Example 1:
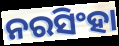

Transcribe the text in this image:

ନରସିଂହା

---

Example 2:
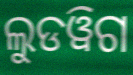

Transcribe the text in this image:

ଲୁଡୱିଗ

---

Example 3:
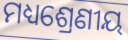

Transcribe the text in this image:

ମଧ୍ୟଶ୍ରେଣୀୟ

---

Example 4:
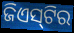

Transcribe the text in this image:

ଜିଏସ୍‌ଟିର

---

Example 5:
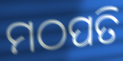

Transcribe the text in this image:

ମଠପତି